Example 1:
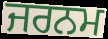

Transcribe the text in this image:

ਜਰਨਮ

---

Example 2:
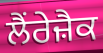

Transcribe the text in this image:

ਲੈਂਰੇਜ਼ੈਕ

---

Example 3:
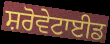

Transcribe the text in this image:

ਸ਼ਰੋਵੇਟਾਈਡ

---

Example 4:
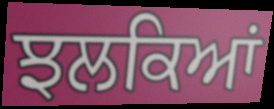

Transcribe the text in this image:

ਝਲਕਿਆਂ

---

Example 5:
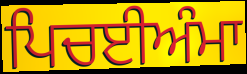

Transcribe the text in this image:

ਪਿਚਈਅੰਮਾ